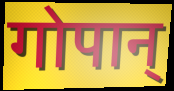
गोपान्